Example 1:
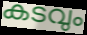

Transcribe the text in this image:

കടവും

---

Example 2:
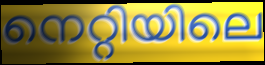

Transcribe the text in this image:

നെറ്റിയിലെ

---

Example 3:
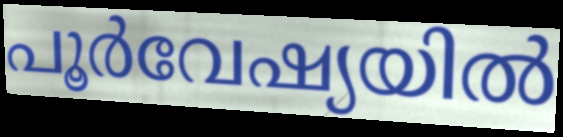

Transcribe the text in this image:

പൂർവേഷ്യയിൽ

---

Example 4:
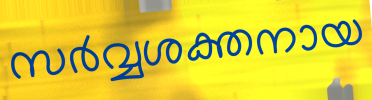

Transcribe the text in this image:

സർവ്വശക്തനായ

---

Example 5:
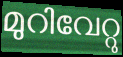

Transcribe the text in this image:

മുറിവേറ്റു